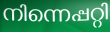
നിന്നെപ്പറ്റി